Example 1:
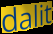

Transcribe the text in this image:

dalit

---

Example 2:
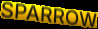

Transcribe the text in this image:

SPARROW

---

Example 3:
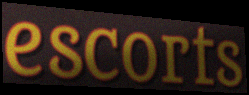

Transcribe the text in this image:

escorts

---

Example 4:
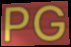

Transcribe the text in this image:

PG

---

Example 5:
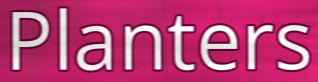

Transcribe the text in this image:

Planters